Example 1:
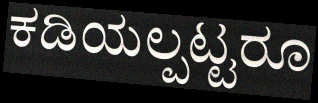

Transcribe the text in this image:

ಕಡಿಯಲ್ಪಟ್ಟರೂ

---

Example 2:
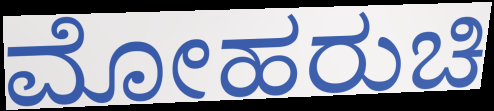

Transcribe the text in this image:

ಮೋಹರುಚಿ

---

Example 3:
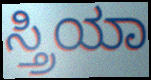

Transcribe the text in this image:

ಸ್ತ್ರಿಯಾ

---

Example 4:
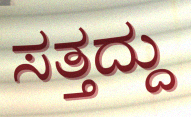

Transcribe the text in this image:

ಸತ್ತದ್ದು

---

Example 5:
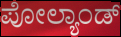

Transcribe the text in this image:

ಪೋಲ್ಯಾಂಡ್